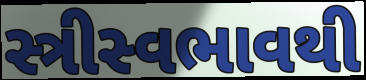
સ્ત્રીસ્વભાવથી